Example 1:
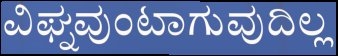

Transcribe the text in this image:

ವಿಘ್ನವುಂಟಾಗುವುದಿಲ್ಲ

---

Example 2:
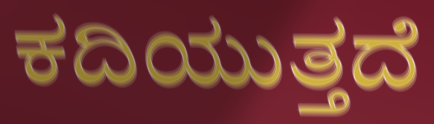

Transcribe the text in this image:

ಕದಿಯುತ್ತದೆ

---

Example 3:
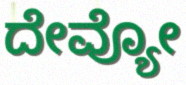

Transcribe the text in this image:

ದೇವ್ಯೋ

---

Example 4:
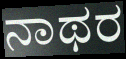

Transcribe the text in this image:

ನಾಥರ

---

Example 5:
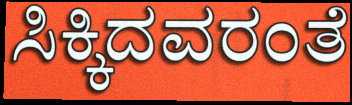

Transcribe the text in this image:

ಸಿಕ್ಕಿದವರಂತೆ